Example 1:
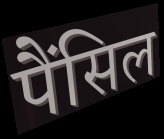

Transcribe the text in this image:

पैंसिल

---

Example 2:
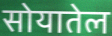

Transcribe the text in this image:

सोयातेल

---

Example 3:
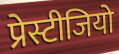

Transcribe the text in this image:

प्रेस्टीजियो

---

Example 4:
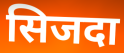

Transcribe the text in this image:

सिजदा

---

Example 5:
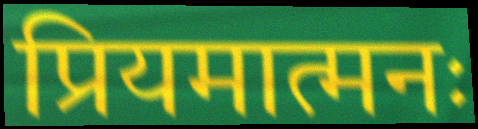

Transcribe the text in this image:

प्रियमात्मनः